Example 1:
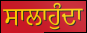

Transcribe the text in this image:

ਸਾਲਾਹੁੰਦਾ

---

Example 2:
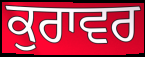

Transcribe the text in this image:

ਕੁਰਾਵਰ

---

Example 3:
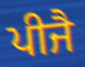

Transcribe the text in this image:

ਪੀਜੈ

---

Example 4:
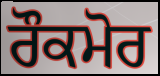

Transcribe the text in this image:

ਰੌਕਮੋਰ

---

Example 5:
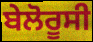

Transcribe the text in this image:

ਬੇਲੋਰੂਸੀ